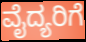
ವೈದ್ಯರಿಗೆ